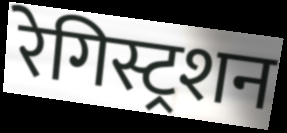
रेगिस्ट्रशन